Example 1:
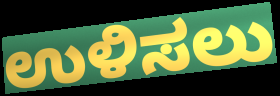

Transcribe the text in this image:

ಉಳಿಸಲು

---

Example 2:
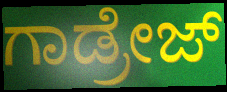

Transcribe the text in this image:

ಗಾಡ್ರೇಜ್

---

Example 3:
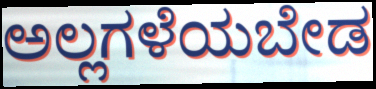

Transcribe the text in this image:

ಅಲ್ಲಗಳೆಯಬೇಡ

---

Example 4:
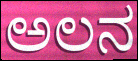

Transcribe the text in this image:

ಅಲನ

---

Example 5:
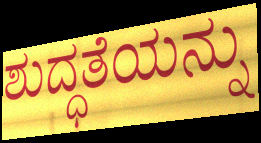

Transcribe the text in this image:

ಶುದ್ಧತೆಯನ್ನು